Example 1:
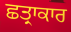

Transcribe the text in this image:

ਛਤ੍ਰਾਕਾਰ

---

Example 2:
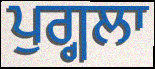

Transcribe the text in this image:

ਪੁਗ੍ਗਲਾ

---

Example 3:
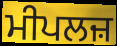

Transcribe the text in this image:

ਮੀਪਲਜ਼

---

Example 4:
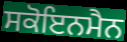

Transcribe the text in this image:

ਸਕੋਇਨਮੈਨ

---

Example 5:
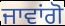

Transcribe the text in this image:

ਜਾਵਾਂਗੋ